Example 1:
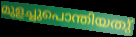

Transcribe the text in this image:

മുളച്ചുപൊന്തിയതു്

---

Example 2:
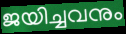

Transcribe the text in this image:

ജയിച്ചവനും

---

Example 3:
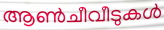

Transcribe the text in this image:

ആൺചീവീടുകൾ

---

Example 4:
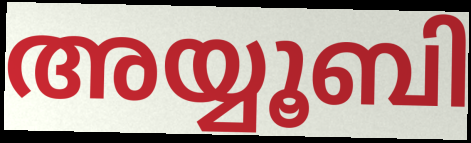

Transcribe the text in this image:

അയ്യൂബി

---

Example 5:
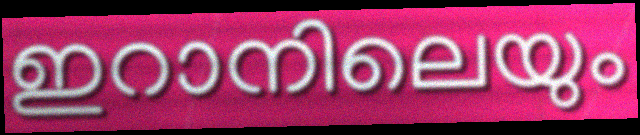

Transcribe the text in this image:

ഇറാനിലെയും